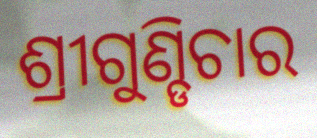
ଶ୍ରୀଗୁଣ୍ଡିଚାର